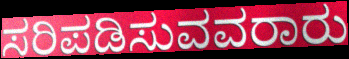
ಸರಿಪಡಿಸುವವರಾರು